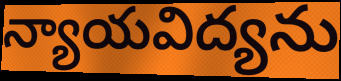
న్యాయవిద్యను